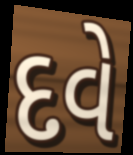
દવે